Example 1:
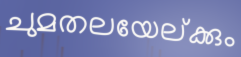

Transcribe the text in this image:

ചുമതലയേല്ക്കും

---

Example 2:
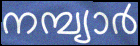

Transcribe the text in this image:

നമ്പ്യാർ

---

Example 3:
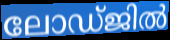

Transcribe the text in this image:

ലോഡ്ജിൽ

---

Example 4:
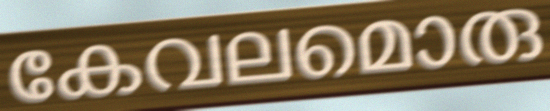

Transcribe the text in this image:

കേവലമൊരു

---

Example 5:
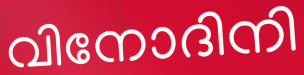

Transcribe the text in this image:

വിനോദിനി